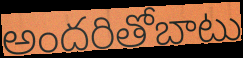
అందరితోబాటు